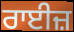
ਰਾਈਜ਼